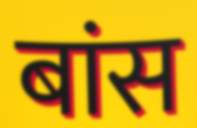
बांस